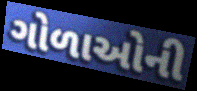
ગોળાઓની